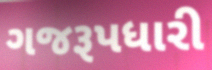
ગજરૂપધારી